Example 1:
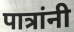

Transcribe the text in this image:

पात्रांनी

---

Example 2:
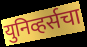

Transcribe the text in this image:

युनिव्हर्सचा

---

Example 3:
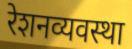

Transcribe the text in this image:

रेशनव्यवस्था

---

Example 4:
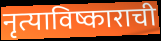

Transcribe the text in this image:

नृत्याविष्काराची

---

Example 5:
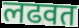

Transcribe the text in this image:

लढवत